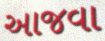
આજવા